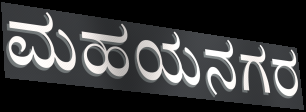
ಮಹಯನಗರ